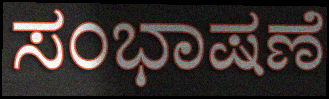
ಸಂಭಾಷಣೆ